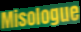
Misologue